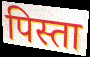
पिस्ता